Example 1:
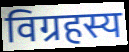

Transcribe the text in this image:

विग्रहस्य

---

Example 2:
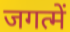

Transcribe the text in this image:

जगत्में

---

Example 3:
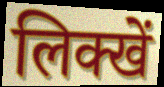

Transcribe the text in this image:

लिक्खें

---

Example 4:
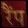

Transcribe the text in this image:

रैंप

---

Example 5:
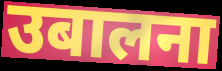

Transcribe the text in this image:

उबालना